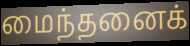
மைந்தனைக்